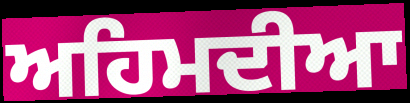
ਅਹਿਮਦੀਆ